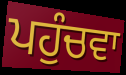
ਪਹੁੰਚਵਾ